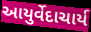
આયુર્વેદાચાર્ય